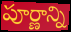
పూర్ణాన్ని